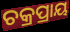
ଚକ୍ରପ୍ରାୟ